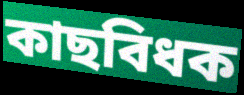
কাছবিধক